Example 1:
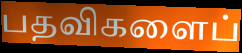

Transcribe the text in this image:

பதவிகளைப்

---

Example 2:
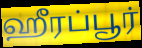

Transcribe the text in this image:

ஹீரப்பூர்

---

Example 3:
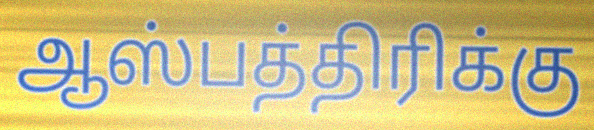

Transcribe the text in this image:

ஆஸ்பத்திரிக்கு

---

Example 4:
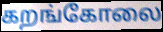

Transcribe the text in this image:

கறங்கோலை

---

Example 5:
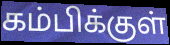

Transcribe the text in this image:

கம்பிக்குள்